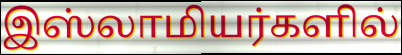
இஸ்லாமியர்களில்